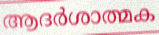
ആദർശാത്മക